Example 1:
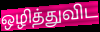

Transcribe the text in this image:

ஒழித்துவிட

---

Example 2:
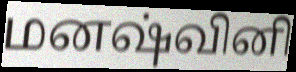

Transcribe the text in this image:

மனஷ்வினி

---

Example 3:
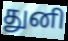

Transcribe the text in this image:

துனி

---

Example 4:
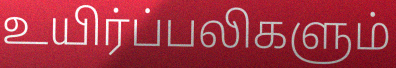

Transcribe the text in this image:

உயிர்ப்பலிகளும்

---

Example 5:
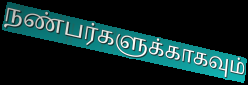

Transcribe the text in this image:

நண்பர்களுக்காகவும்